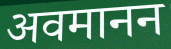
अवमानन